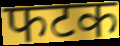
फटक